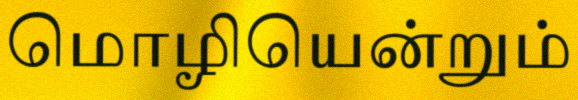
மொழியென்றும்